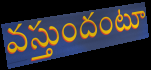
వస్తుందంటూ